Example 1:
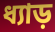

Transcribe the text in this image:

ধ্যাড়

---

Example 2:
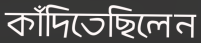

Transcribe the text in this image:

কাঁদিতেছিলেন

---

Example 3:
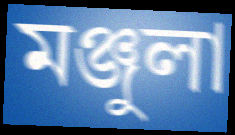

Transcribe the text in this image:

মঞ্জুলা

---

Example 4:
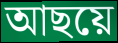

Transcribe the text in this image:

আছয়ে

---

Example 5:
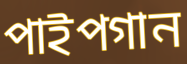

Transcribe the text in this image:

পাইপগান